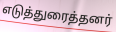
எடுத்துரைத்தனர்